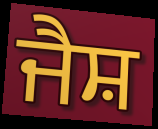
ਜੈਸ਼